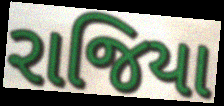
રાજિયા